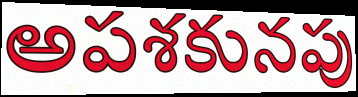
అపశకునపు